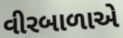
વીરબાળાએ